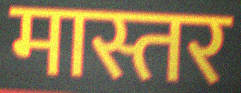
मास्तर